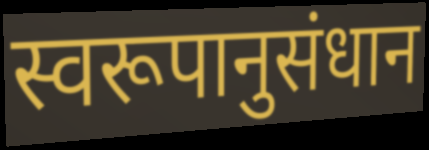
स्वरूपानुसंधान